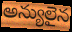
అన్యులైన